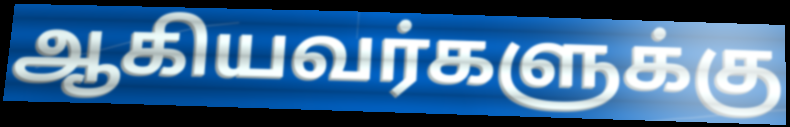
ஆகியவர்களுக்கு